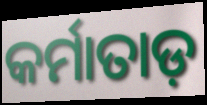
କର୍ମାତାଡ଼